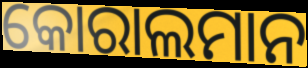
କୋରାଲମାନ